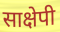
साक्षेपी